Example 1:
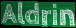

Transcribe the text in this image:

Aldrin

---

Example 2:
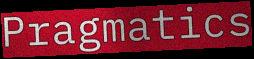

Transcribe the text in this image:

Pragmatics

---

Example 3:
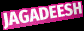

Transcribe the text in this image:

JAGADEESH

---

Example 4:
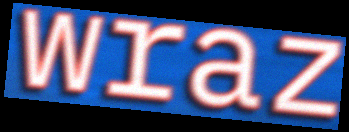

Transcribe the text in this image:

wraz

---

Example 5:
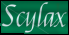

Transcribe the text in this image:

Scylax